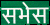
सभेस